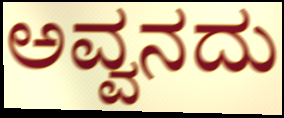
ಅವ್ವನದು